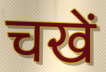
चखें